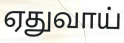
ஏதுவாய்